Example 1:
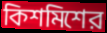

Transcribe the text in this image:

কিশমিশের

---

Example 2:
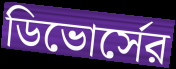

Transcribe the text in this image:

ডিভোর্সের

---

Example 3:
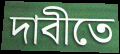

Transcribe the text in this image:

দাবীতে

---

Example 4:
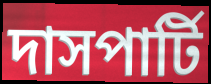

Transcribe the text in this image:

দাসপার্টি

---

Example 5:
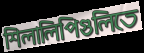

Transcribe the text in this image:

শিলালিপিগুলিতে